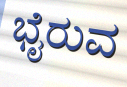
ಭೈರುವ